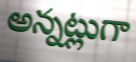
అన్నట్లుగా